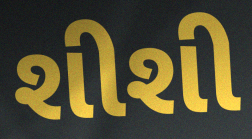
શીશી